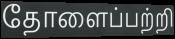
தோளைப்பற்றி